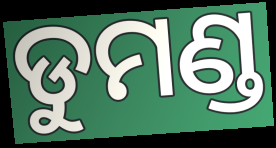
ଡୁମଣ୍ଡ